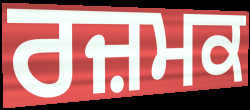
ਰਜ਼ਮਕ